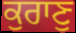
ਕੁਰਾਣੁ